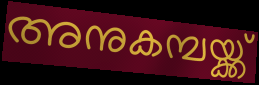
അനുകമ്പയ്ക്ക്